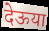
देऊया